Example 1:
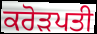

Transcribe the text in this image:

ਕਰੋੜਪਤੀ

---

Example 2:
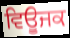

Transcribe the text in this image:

ਵਿਊਜਕ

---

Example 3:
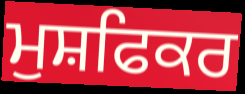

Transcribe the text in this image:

ਮੁਸ਼ਫਿਕਰ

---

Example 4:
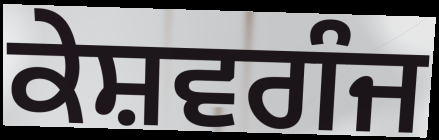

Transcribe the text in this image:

ਕੇਸ਼ਵਗੰਜ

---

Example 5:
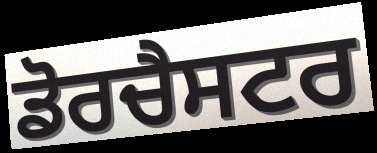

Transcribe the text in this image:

ਡੋਰਚੈਸਟਰ